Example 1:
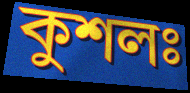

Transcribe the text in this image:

কুশলঃ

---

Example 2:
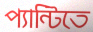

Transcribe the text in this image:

প্যান্টিতে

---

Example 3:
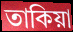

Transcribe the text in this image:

তাকিয়া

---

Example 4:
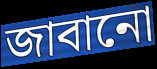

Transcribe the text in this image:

জাবানো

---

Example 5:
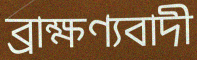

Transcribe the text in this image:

ব্রাক্ষণ্যবাদী